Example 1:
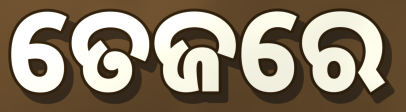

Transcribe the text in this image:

ତେଜରେ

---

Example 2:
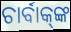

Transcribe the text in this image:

ଚାର୍ବାକ୍‌ଙ୍କ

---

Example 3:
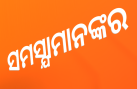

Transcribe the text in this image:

ସମସ୍ଯାମାନଙ୍କର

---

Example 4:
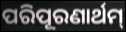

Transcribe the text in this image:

ପରିପୂରଣାର୍ଥମ୍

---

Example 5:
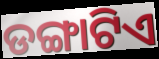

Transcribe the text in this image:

ଡଙ୍ଗାଟିଏ